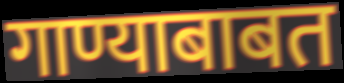
गाण्याबाबत